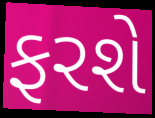
ફરશે